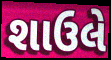
શાઉલે